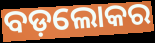
ବଡ଼ଲୋକର